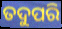
ତଦୁପରି